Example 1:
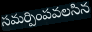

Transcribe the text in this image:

సమర్పింపవలసిన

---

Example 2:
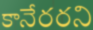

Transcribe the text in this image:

కానేరరని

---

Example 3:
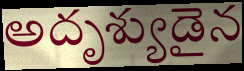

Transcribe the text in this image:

అదృశ్యుడైన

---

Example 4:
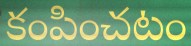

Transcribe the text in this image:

కంపించటం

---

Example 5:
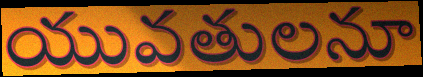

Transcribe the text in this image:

యువతులనూ